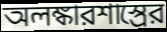
অলঙ্কারশাস্ত্রের